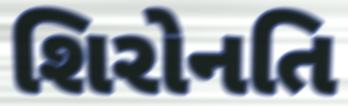
શિરોનતિ